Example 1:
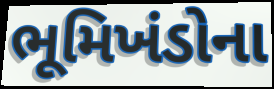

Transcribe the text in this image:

ભૂમિખંડોના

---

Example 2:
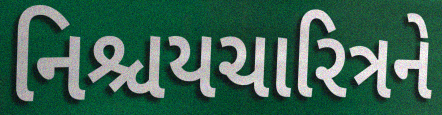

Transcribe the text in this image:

નિશ્ચયચારિત્રને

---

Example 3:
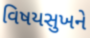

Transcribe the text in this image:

વિષયસુખને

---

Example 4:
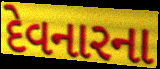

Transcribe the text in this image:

દેવનારના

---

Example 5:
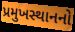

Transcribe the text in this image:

પ્રમુખસ્થાનનો